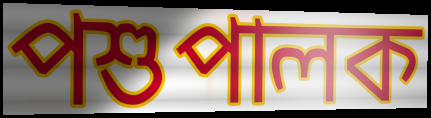
পশুপালক